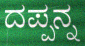
ದಪ್ಪನ್ನ